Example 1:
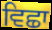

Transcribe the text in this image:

ਵਿਛਾ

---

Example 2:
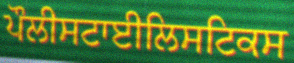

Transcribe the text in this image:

ਪੌਲੀਸਟਾਈਲਿਸਟਿਕਸ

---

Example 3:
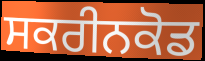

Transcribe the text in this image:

ਸਕਰੀਨਕੋਡ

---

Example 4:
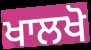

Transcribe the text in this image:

ਖਾਲਖੋ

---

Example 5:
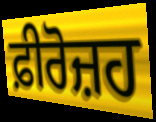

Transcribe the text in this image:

ਫ਼ੀਰੋਜ਼ਹ